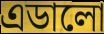
এডালো